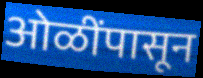
ओळींपासून